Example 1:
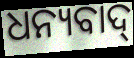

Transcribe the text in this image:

ଧନ୍ୟବାଦ୍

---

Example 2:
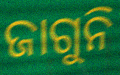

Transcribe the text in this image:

ଜାଗୁନି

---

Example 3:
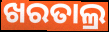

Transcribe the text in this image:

ଖରତାଲ୍ର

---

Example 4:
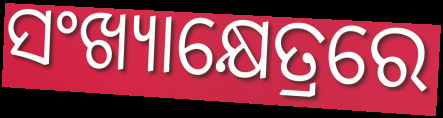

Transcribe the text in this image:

ସଂଖ୍ୟାକ୍ଷେତ୍ରରେ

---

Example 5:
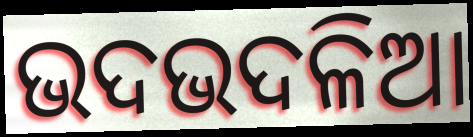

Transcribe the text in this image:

ଭଦଭଦଳିଆ